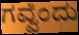
ಗವ್ವೆಂದು